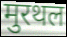
मुरथल